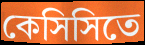
কেসিসিতে